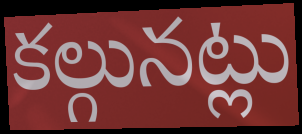
కల్గునట్లు